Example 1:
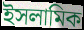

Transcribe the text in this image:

ইসলামিক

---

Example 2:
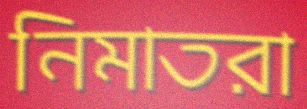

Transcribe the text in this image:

নিমাতরা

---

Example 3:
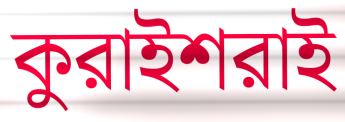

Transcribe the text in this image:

কুরাইশরাই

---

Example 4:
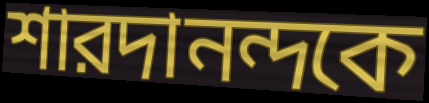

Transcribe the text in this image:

শারদানন্দকে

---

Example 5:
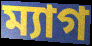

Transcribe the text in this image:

ম্যাগ